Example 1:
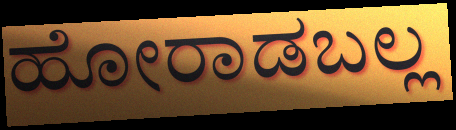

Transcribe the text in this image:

ಹೋರಾಡಬಲ್ಲ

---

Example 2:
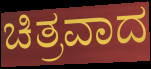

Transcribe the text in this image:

ಚಿತ್ರವಾದ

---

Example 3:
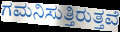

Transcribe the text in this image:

ಗಮನಿಸುತ್ತಿರುತ್ತವೆ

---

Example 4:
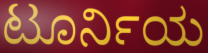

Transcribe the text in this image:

ಟೂರ್ನಿಯ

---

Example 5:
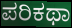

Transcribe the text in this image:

ಪರಿಕಥಾ